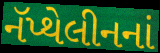
નૅપ્થેલીનનાં